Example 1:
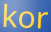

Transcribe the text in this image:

kor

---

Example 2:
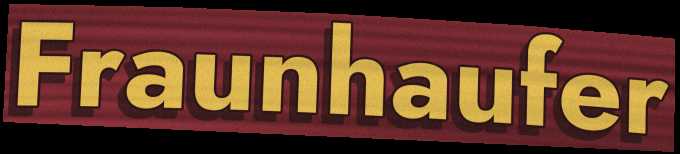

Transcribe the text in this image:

Fraunhaufer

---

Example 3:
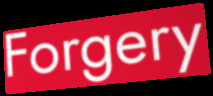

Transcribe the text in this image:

Forgery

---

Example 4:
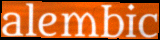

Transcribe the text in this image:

alembic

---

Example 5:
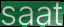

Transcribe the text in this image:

saat